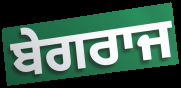
ਬੇਗਰਾਜ